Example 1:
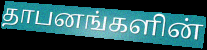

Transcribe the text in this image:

தாபனங்களின்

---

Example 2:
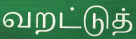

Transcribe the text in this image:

வறட்டுத்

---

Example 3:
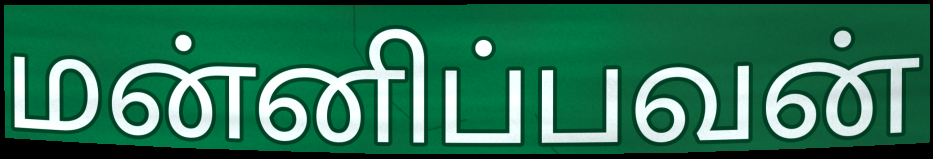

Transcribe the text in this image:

மன்னிப்பவன்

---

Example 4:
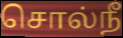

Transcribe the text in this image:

சொல்நீ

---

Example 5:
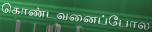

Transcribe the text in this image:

கொண்டவனைப்போல